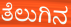
ತೆಲುಗಿನ